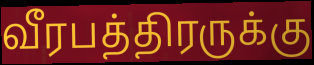
வீரபத்திரருக்கு